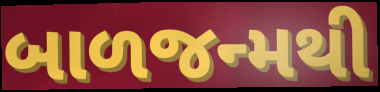
બાળજન્મથી